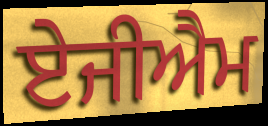
ਏਜੀਐਮ